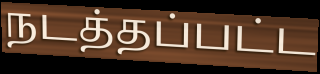
நடத்தப்பட்ட